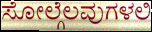
ಸೋಲ್ಗೆಲವುಗಳಲಿ